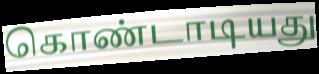
கொண்டாடியது